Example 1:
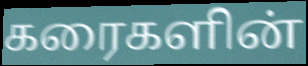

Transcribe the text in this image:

கரைகளின்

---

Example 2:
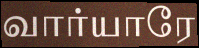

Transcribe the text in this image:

வார்யாரே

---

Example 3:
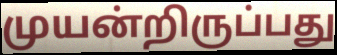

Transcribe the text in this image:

முயன்றிருப்பது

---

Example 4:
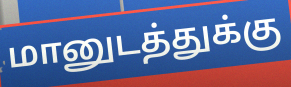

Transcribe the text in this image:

மானுடத்துக்கு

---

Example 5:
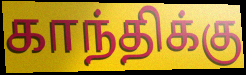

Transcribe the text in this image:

காந்திக்கு